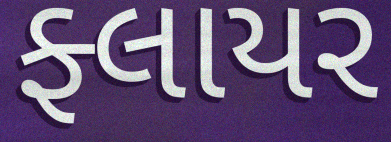
ફ્લાયર